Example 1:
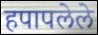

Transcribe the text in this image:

हपापलेले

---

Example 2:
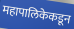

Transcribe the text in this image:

महापालिकेकडून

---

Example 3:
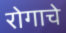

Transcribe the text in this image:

रोगाचे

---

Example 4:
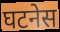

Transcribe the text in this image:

घटनेस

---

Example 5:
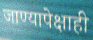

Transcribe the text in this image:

जाण्यापेक्षाही